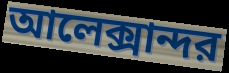
আলেক্সান্দর